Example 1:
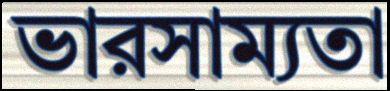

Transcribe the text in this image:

ভারসাম্যতা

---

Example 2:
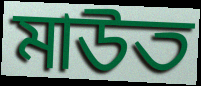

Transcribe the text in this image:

মাউত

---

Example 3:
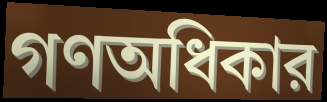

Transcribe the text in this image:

গণঅধিকার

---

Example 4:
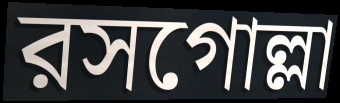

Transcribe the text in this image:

রসগোল্লা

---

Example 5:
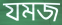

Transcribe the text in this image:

যমজ